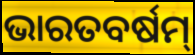
ଭାରତବର୍ଷମ୍